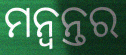
ମନ୍ୱନ୍ତର